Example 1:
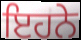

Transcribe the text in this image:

ਇਹਨੇ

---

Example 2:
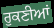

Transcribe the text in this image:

ਰੁਕਣੀਆਂ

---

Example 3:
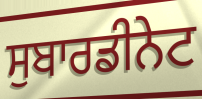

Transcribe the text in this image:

ਸੁਬਾਰਡੀਨੇਟ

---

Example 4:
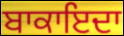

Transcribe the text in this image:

ਬਾਕਾਇਦਾ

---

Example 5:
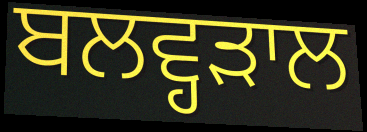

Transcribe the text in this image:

ਬਲਵ੍ਹੜਾਲ